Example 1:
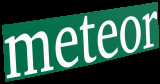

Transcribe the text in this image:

meteor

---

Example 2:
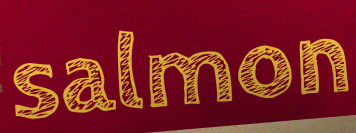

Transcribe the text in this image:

salmon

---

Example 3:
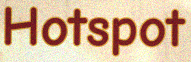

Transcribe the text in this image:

Hotspot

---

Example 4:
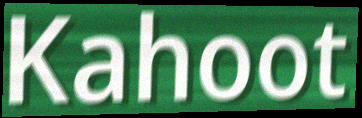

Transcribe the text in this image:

Kahoot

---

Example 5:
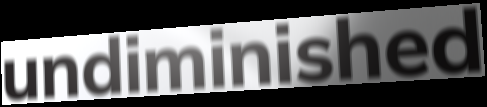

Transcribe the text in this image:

undiminished